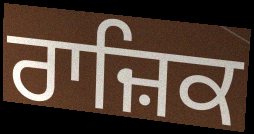
ਰਾਜ਼ਿਕ